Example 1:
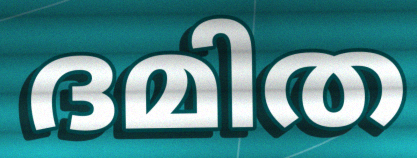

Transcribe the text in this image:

ദമിത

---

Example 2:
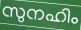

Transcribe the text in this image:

സുനഹിം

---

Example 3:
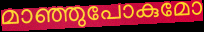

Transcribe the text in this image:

മാഞ്ഞുപോകുമോ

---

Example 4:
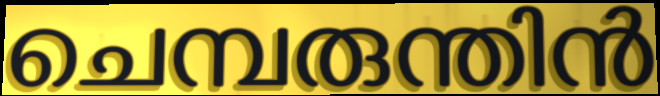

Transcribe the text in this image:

ചെമ്പരുന്തിൻ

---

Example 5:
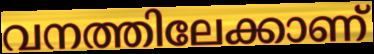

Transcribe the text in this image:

വനത്തിലേക്കാണ്